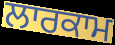
ਲਾਰਕਾਮ